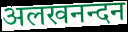
अलखनन्दन